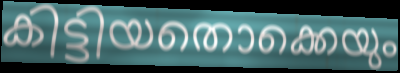
കിട്ടിയതൊക്കെയും